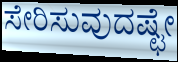
ಸೇರಿಸುವುದಷ್ಟೇ